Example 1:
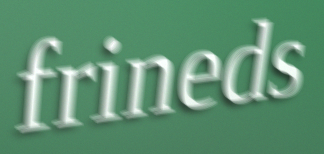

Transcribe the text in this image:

frineds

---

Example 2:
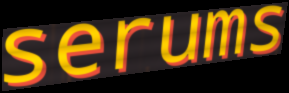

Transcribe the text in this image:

serums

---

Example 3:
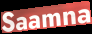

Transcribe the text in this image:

Saamna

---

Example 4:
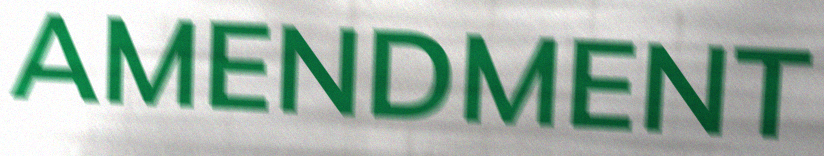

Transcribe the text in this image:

AMENDMENT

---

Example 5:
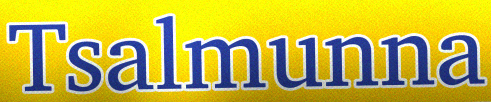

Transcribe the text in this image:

Tsalmunna